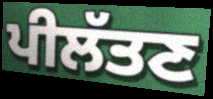
ਪੀਲੱਤਣ